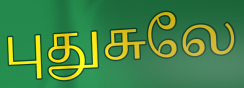
புதுசுலே